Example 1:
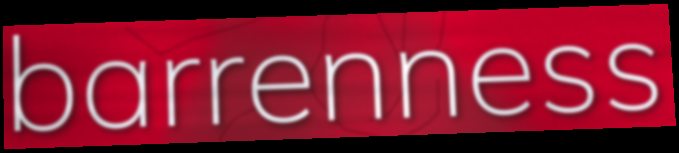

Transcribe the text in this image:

barrenness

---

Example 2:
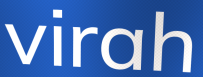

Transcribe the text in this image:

virah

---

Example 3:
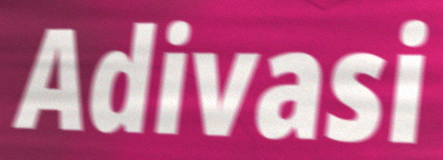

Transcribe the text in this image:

Adivasi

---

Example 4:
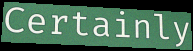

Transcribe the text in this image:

Certainly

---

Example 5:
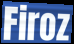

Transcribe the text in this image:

Firoz